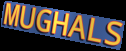
MUGHALS